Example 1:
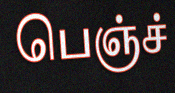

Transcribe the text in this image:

பெஞ்ச்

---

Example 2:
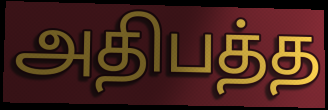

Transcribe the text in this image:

அதிபத்த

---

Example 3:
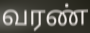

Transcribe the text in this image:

வரண்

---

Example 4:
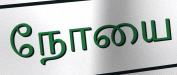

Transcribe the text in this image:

நோயை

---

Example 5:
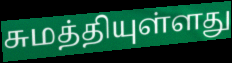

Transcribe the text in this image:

சுமத்தியுள்ளது